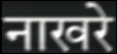
नाखरे